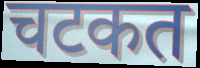
चटकत